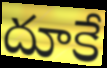
దూకే